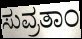
ಸುವ್ರತಾಂ